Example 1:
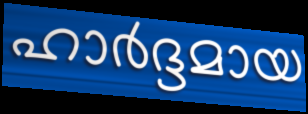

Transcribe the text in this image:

ഹാർദ്ദമായ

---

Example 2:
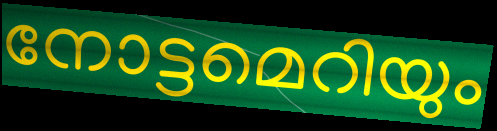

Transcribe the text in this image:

നോട്ടമെറിയും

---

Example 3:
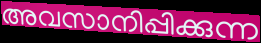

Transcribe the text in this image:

അവസാനിപ്പിക്കുന്ന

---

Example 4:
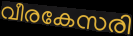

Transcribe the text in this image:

വീരകേസരി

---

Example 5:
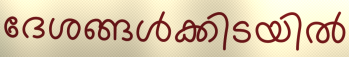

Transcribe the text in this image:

ദേശങ്ങൾക്കിടയിൽ